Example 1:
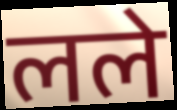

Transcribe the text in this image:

लले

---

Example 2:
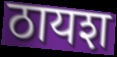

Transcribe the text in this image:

ठायश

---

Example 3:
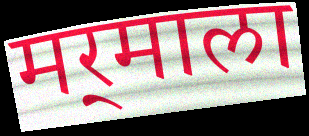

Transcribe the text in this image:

मर्माला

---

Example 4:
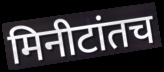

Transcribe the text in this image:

मिनीटांतच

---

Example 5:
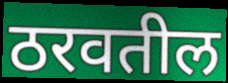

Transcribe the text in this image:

ठरवतील